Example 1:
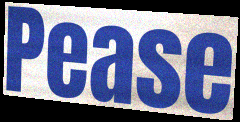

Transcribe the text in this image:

Pease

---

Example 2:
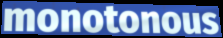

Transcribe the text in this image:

monotonous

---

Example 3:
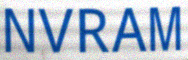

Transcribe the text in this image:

NVRAM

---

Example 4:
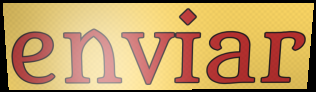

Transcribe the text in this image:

enviar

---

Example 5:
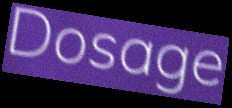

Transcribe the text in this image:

Dosage